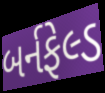
બર્નફેલ્ડ